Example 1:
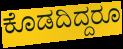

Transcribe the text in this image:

ಕೊಡದಿದ್ದರೂ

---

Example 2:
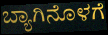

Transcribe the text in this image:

ಬ್ಯಾಗಿನೊಳಗೆ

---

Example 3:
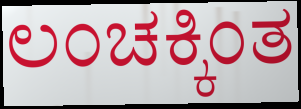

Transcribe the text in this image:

ಲಂಚಕ್ಕಿಂತ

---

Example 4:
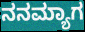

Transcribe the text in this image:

ನನಮ್ಯಾಗ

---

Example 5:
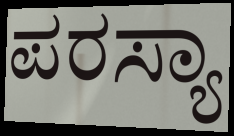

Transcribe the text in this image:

ಪರಸ್ಯಾ